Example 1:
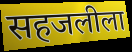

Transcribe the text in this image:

सहजलीला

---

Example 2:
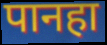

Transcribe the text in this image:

पानहा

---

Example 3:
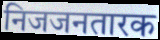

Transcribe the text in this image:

निजजनतारक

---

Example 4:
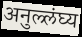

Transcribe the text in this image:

अनुल्लंघ्य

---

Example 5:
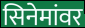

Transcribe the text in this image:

सिनेमांवर